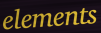
elements